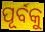
ପୂର୍ବକୁ